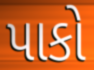
પાકો